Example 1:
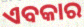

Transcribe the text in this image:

ଏବକାର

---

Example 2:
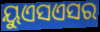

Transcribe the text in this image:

ୟୁଏସଏସର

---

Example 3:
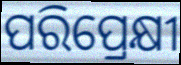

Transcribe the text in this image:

ପରିପ୍ରେକ୍ଷୀ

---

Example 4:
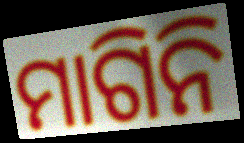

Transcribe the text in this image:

ମାଗିନି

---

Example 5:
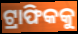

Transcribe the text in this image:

ଟ୍ରାଫିକକୁ